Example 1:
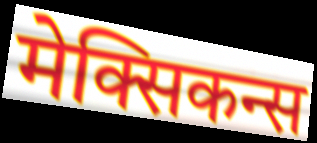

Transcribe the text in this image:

मेक्सिकन्स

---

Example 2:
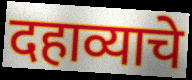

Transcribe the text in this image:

दहाव्याचे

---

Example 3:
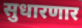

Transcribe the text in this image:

सुधारणार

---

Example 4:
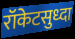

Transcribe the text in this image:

रॉकेटसुध्दा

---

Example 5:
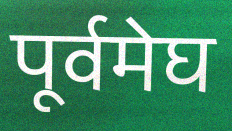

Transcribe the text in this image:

पूर्वमेघ